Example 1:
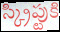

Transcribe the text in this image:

స్క్రిప్టుకి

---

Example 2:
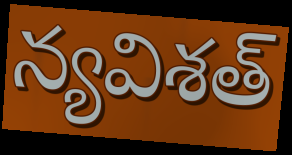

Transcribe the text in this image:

న్యవిశత్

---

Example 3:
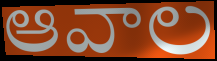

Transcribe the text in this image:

ఆవాల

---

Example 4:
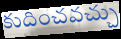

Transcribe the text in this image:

కుదించవచ్చు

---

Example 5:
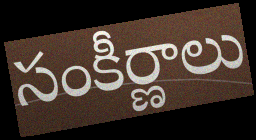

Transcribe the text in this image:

సంకీర్ణాలు